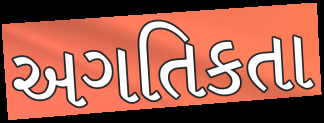
અગતિકતા